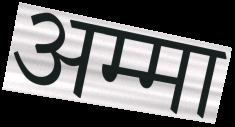
अम्मा